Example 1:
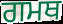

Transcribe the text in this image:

ਗਮਥ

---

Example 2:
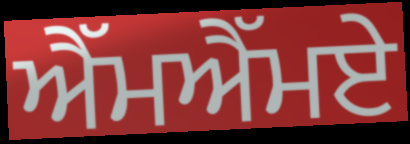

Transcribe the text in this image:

ਐੱਮਐੱਮਏ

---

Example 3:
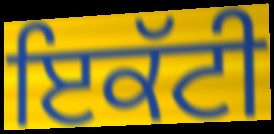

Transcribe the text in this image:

ਇਕੱਟੀ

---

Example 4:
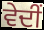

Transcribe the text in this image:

ਵੇਦੀਂ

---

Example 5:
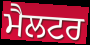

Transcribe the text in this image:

ਮੈਲਟਰ